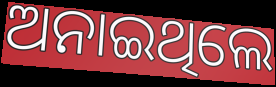
ଅନାଇଥିଲେ